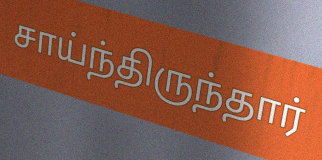
சாய்ந்திருந்தார்